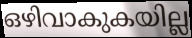
ഒഴിവാകുകയില്ല